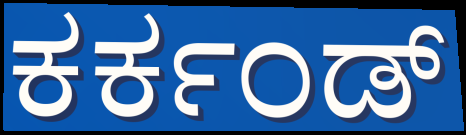
ಕರ್ಕಂಡ್